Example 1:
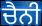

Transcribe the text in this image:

ਚੈਨੀ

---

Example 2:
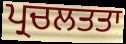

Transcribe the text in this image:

ਪ੍ਰਚਲਤਤਾ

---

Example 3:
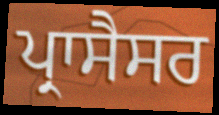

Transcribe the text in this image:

ਪ੍ਰਾਸੈਸਰ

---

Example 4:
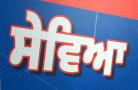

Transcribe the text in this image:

ਸੇਵਿਆ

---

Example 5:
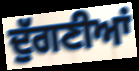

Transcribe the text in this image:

ਦੁੱਗਣੀਆਂ